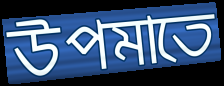
উপমাতে